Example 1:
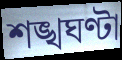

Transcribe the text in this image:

শঙ্খঘণ্টা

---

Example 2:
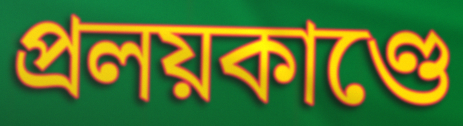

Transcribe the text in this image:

প্রলয়কাণ্ডে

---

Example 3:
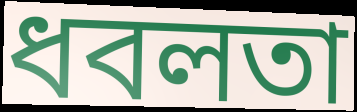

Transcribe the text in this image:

ধবলতা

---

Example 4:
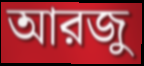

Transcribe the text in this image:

আরজু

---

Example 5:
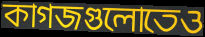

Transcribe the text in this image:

কাগজগুলোতেও